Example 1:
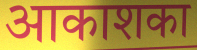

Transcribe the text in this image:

आकाशका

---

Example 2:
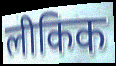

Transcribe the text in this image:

लीकिक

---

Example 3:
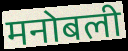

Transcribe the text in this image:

मनोबली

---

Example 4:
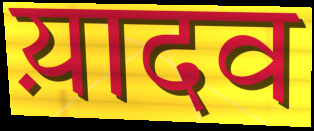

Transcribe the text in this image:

य़ादव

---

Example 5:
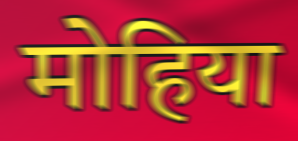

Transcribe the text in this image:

मोहिया